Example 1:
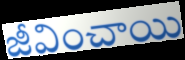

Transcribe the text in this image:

జీవించాయి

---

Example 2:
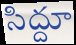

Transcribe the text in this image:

సిద్దూ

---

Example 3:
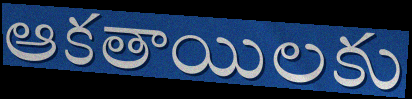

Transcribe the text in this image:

ఆకతాయిలకు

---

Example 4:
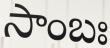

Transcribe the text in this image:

సాంబః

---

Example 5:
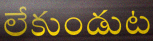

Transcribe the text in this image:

లేకుండుట